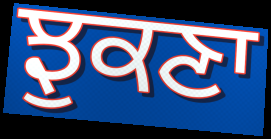
ਝੁਕਣਾ